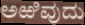
ಅಱಿವುದು